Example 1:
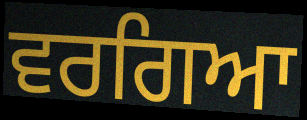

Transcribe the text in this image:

ਵਰਗਿਆ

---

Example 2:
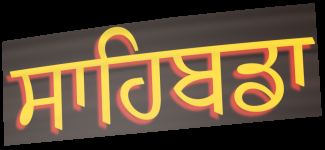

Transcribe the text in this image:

ਸਾਹਿਬਡਾ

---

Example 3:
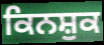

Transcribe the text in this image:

ਕਿਨਸ਼ੁਕ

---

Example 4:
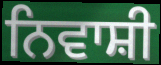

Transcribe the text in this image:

ਨਿਵਾਸ਼ੀ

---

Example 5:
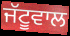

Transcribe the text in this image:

ਜੱਟੂਵਾਲ